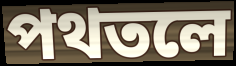
পথতলে